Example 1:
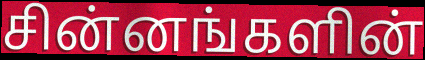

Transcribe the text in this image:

சின்னங்களின்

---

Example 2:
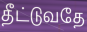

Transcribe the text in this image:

தீட்டுவதே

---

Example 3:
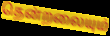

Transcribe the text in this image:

தென்றலையும்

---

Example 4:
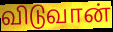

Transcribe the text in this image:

விடுவான்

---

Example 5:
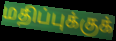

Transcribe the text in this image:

மதிப்புக்குக்